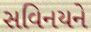
સવિનયને